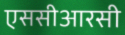
एससीआरसी